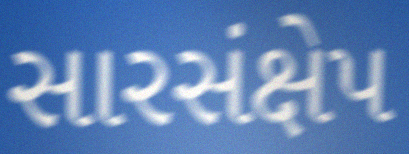
સારસંક્ષેપ